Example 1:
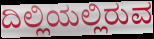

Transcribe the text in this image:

ದಿಲ್ಲಿಯಲ್ಲಿರುವ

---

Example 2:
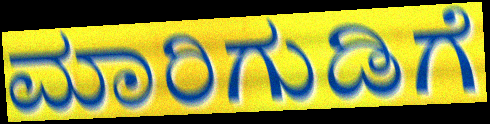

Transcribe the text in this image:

ಮಾರಿಗುಡಿಗೆ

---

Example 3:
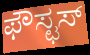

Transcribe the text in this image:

ಫೌಸ್ಟಸ್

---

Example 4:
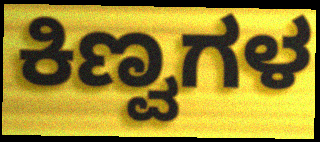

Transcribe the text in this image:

ಕಿಣ್ವಗಳ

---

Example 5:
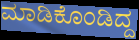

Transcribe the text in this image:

ಮಾಡಿಕೊಂಡಿದ್ದ